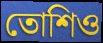
তোশিও